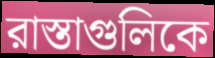
রাস্তাগুলিকে